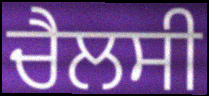
ਚੈਲਸੀ